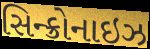
સિન્ક્રોનાઇઝ